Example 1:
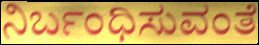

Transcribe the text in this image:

ನಿರ್ಬಂಧಿಸುವಂತೆ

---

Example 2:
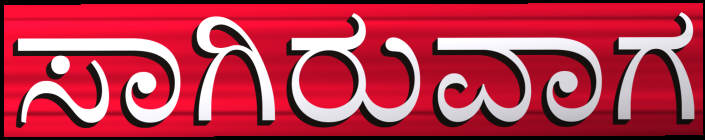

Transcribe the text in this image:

ಸಾಗಿರುವಾಗ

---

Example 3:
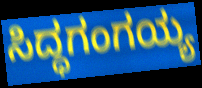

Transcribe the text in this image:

ಸಿದ್ಧಗಂಗಯ್ಯ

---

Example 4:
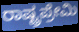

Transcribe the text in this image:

ರಾಷ್ಟ್ರಪ್ರೇಮಿ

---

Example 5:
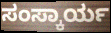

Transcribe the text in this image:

ಸಂಸ್ಕಾರ್ಯ